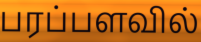
பரப்பளவில்